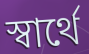
স্বার্থে